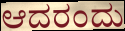
ಆದರಂದು